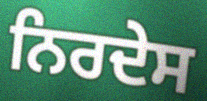
ਨਿਰਦੇਸ